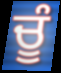
ਚੂੰ